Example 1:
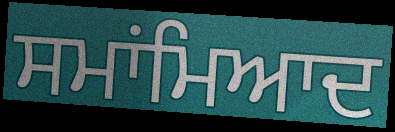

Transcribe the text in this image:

ਸਮਾਂਮਿਆਦ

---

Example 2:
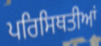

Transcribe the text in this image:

ਪਰਿਸਿਥਤੀਆਂ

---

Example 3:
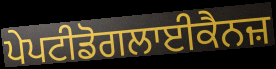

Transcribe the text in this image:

ਪੇਪਟੀਡੋਗਲਾਈਕੈਨਜ਼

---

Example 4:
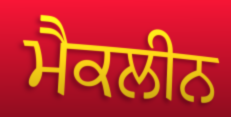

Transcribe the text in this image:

ਮੈਕਲੀਨ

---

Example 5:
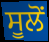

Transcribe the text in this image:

ਸੂਲੋਂ